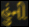
હુંની